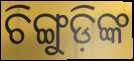
ଚିଙ୍ଗୁଡ଼ିଙ୍କ